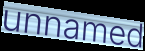
unnamed